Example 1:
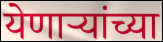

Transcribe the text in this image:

येणाऱ्यांच्या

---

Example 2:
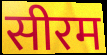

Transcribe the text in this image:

सीरम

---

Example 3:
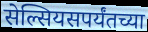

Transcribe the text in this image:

सेल्सियसपर्यंतच्या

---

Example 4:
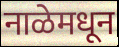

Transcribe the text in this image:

नाळेमधून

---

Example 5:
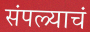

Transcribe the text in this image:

संपल्याचं